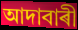
আদাবাৰী